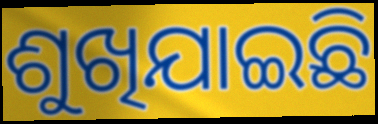
ଶୁଖିଯାଇଛି